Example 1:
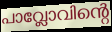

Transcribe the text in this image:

പാവ്ലോവിന്റെ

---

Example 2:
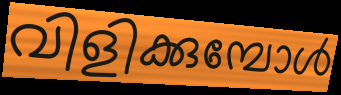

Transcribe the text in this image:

വിളിക്കുമ്പോൾ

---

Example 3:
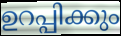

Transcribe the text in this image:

ഉറപ്പിക്കും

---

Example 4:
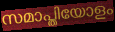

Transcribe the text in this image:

സമാപ്തിയോളം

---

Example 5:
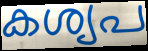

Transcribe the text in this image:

കശ്യപ